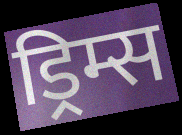
ड्रिम्स